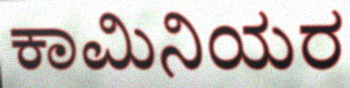
ಕಾಮಿನಿಯರ